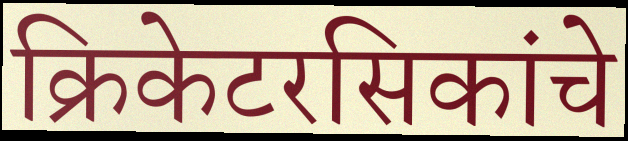
क्रिकेटरसिकांचे